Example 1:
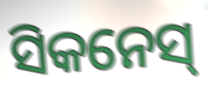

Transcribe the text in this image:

ସିକନେସ୍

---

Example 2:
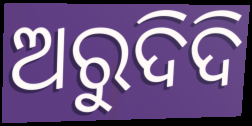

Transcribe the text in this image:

ଅରୁଦିଦି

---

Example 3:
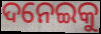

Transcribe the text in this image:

ଦନେଇକୁ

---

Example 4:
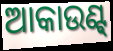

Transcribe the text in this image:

ଆକାଉଣ୍ଟ୍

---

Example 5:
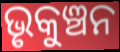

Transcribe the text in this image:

ଭୃକୁଞ୍ଚନ